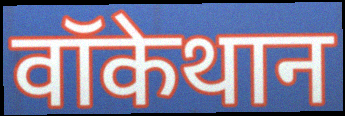
वॉकेथान